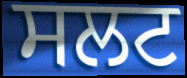
ਸਲਟ